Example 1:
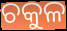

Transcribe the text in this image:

ଚକୁଳ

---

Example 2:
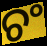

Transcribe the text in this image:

ଚଂ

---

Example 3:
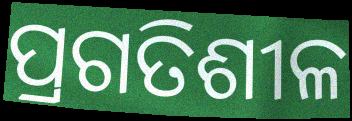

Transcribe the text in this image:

ପ୍ରଗତିଶୀଳ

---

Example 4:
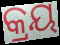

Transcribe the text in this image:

କ୍ରୟ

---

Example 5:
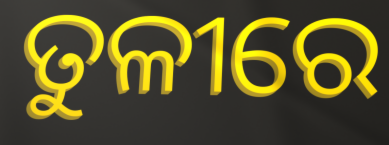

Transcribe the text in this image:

ତୁଳୀରେ